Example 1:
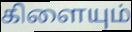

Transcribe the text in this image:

கிளையும்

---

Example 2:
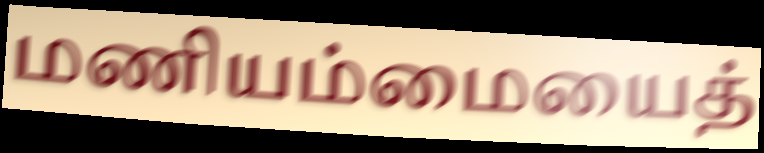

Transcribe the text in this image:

மணியம்மையைத்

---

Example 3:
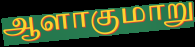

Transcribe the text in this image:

ஆளாகுமாறு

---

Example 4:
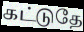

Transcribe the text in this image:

கட்டுதே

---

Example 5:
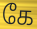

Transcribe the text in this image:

கே